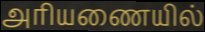
அரியணையில்